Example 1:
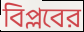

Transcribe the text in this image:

বিপ্লবের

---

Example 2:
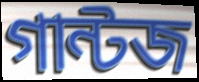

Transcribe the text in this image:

গান্টজ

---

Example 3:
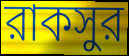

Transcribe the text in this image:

রাকসুর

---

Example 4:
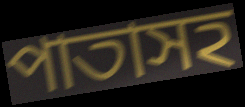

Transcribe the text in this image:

পাতাসহ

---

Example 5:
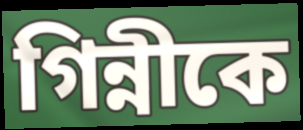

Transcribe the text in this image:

গিন্নীকে